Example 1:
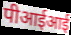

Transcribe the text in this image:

पीआईआई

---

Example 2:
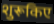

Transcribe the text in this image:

शुरूकिए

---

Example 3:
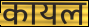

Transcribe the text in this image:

कायल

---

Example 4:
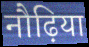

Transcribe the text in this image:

नौढ़िया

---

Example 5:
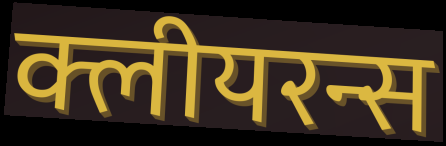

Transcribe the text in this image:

क्लीयरन्स